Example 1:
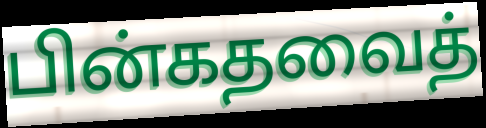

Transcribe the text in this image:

பின்கதவைத்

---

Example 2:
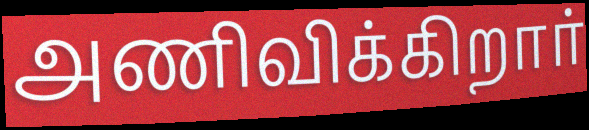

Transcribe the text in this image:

அணிவிக்கிறார்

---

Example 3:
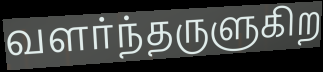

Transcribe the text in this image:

வளர்ந்தருளுகிற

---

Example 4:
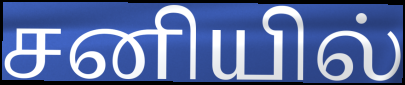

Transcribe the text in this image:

சனியில்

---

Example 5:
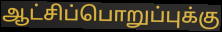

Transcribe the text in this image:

ஆட்சிப்பொறுப்புக்கு